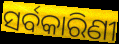
ସର୍ବକାରିଣୀ